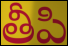
తీపి